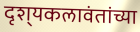
दृश्यकलावंतांच्या